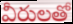
వీరులతో